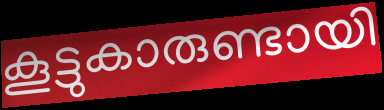
കൂട്ടുകാരുണ്ടായി